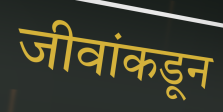
जीवांकडून